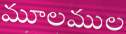
మూలముల